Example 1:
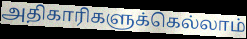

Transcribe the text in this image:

அதிகாரிகளுக்கெல்லாம்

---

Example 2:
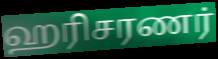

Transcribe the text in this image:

ஹரிசரணர்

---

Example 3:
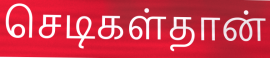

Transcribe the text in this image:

செடிகள்தான்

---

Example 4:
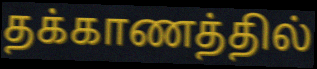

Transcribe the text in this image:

தக்காணத்தில்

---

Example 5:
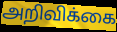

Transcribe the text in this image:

அறிவிக்கை